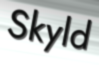
Skyld